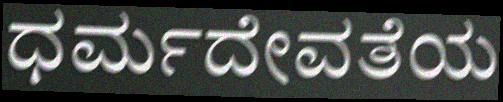
ಧರ್ಮದೇವತೆಯ